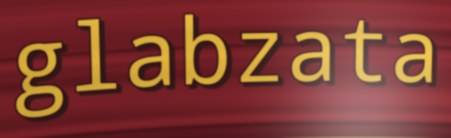
glabzata